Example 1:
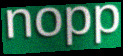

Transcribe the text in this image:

nopp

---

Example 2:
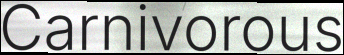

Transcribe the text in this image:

Carnivorous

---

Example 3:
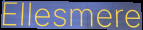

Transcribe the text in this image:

Ellesmere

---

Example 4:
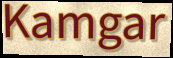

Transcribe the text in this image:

Kamgar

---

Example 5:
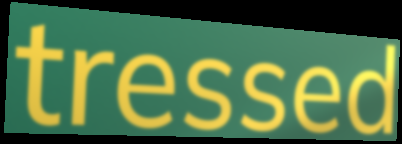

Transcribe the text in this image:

tressed